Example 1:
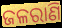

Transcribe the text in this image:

ଜଳରାଣି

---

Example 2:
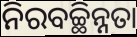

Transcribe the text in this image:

ନିରବଚ୍ଛିନ୍ନତା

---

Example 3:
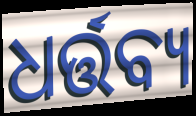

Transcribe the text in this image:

ଧର୍ତ୍ତବ୍ୟ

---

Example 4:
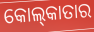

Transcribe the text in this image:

କୋଲ୍‍କାତାର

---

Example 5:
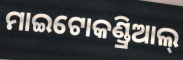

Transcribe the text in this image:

ମାଇଟୋକଣ୍ଡ୍ରିଆଲ୍